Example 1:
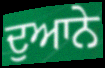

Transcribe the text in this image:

ਦੁਆਨੇ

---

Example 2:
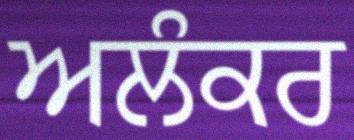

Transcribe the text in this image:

ਅਲੰਕਰ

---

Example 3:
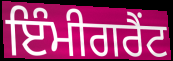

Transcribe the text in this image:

ਇੰਮੀਗਰੈਂਟ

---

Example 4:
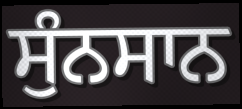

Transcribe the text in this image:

ਸੁੰਨਸਾਨ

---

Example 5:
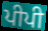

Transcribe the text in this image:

ਪੀਪੀ